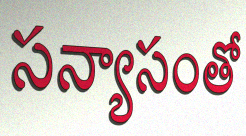
సన్యాసంతో